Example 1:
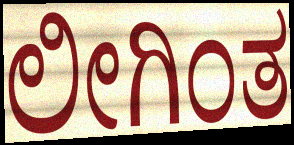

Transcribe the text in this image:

ಲೀಗಿಂತ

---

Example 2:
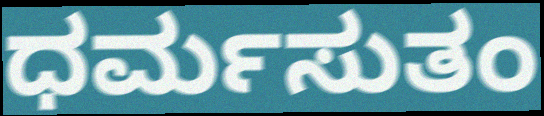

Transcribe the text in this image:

ಧರ್ಮಸುತಂ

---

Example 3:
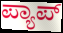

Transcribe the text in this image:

ಪ್ಯಾಪ್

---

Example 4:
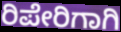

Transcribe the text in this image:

ರಿಪೇರಿಗಾಗಿ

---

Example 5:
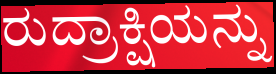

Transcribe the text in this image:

ರುದ್ರಾಕ್ಷಿಯನ್ನು